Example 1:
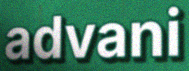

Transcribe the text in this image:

advani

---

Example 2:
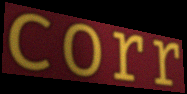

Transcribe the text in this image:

corr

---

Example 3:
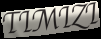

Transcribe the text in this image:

TIMIZI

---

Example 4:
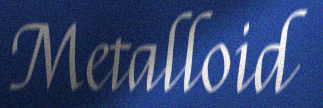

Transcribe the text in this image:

Metalloid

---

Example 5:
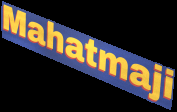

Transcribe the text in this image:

Mahatmaji